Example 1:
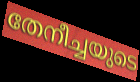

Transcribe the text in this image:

തേനീച്ചയുടെ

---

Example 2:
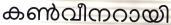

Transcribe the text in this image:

കൺവീനറായി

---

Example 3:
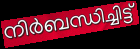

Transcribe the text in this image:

നിർബന്ധിച്ചിട്ട്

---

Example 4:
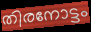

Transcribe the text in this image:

തിരനോട്ടം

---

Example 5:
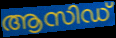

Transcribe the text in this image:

ആസിഡ്